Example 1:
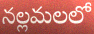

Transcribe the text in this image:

నల్లమలలో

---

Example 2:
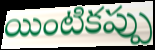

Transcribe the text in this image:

యింటికప్పు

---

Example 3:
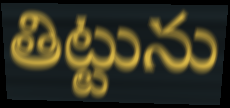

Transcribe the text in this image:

తిట్టును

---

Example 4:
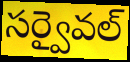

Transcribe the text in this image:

సర్వైవల్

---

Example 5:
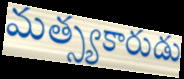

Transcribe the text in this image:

మత్స్యకారుడు